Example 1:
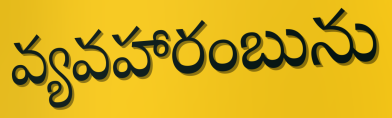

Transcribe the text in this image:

వ్యవహారంబును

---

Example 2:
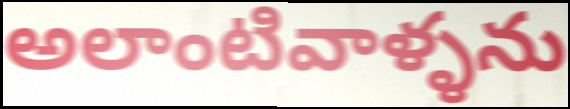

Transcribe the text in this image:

అలాంటివాళ్ళను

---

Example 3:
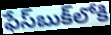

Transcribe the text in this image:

ఫేస్‌బుక్‌లోకి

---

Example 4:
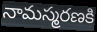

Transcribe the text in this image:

నామస్మరణకి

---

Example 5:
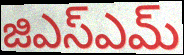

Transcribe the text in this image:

జిఎస్ఎమ్